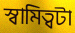
স্বামিত্বটা